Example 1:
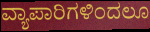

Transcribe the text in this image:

ವ್ಯಾಪಾರಿಗಳಿಂದಲೂ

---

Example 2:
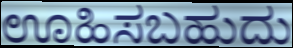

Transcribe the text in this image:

ಊಹಿಸಬಹುದು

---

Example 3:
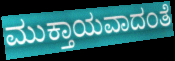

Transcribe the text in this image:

ಮುಕ್ತಾಯವಾದಂತೆ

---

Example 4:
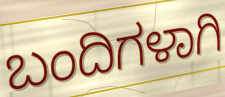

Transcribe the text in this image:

ಬಂದಿಗಳಾಗಿ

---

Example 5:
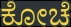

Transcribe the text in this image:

ಕೋಚೆ